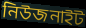
নিউজনাইট